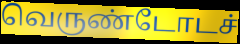
வெருண்டோடச்